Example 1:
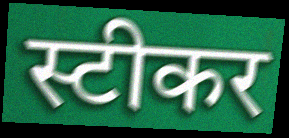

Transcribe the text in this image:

स्टीकर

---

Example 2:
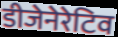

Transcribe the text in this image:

डीजेनेरेटिव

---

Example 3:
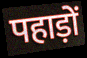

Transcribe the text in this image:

पहाड़ों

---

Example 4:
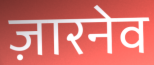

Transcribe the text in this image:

ज़ारनेव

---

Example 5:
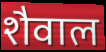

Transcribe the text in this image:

शैवाल